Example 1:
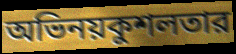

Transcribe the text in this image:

অভিনয়কুশলতার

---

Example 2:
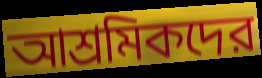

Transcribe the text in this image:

আশ্রমিকদের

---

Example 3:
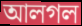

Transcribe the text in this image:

আলগল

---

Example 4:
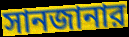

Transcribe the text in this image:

সানজানার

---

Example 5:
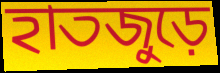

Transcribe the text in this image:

হাতজুড়ে